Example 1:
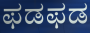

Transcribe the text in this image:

ಫಡಫಡ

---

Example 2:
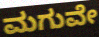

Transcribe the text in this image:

ಮಗುವೇ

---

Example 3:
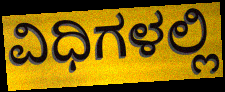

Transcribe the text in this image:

ವಿಧಿಗಳಲ್ಲಿ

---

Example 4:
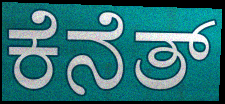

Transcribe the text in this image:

ಕೆನೆತ್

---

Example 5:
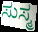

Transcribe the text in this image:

ಸುಸ್ಮ